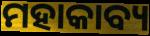
ମହାକାବ୍ୟ